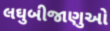
લઘુબીજાણુઓ